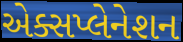
એક્સપ્લેનેશન